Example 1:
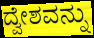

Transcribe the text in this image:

ದ್ವೇಶವನ್ನು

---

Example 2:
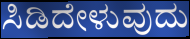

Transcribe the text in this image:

ಸಿಡಿದೇಳುವುದು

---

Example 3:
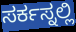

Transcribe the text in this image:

ಸರ್ಕಸ್ನಲ್ಲಿ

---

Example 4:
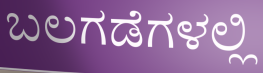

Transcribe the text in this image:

ಬಲಗಡೆಗಳಲ್ಲಿ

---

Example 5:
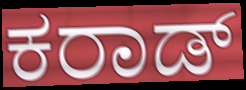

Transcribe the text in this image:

ಕರಾಡ್